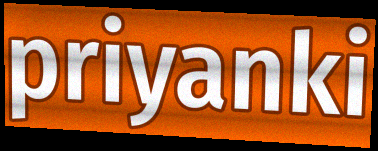
priyanki